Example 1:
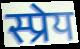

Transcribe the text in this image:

स्प्रेय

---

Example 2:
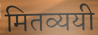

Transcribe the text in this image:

मितव्ययी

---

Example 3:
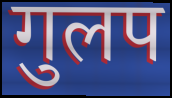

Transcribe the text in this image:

गुलप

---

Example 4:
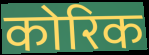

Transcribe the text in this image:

कोरिक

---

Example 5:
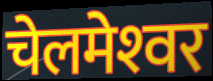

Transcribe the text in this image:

चेलमेश्‍वर